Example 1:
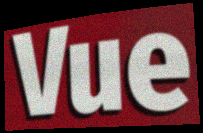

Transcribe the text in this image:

Vue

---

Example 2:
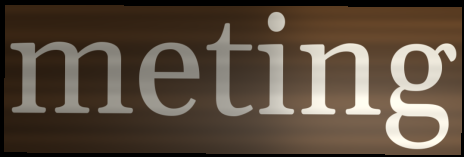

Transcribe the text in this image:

meting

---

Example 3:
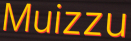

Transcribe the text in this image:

Muizzu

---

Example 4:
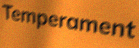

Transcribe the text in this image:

Temperament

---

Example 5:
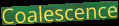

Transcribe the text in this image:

Coalescence